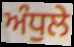
ਅੰਧੁਲੇ